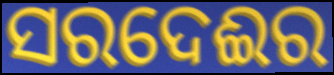
ସରଦେଈର